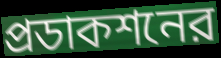
প্রডাকশনের